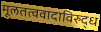
मूलतत्ववादाविरुद्ध